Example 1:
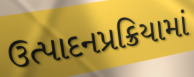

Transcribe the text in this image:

ઉત્પાદનપ્રક્રિયામાં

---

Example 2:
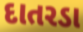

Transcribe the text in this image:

દાતરડા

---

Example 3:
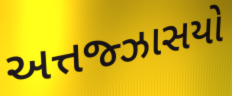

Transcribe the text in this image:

અત્તજ્ઝાસયો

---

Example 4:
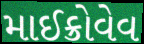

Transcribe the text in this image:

માઈક્રોવેવ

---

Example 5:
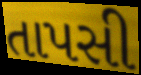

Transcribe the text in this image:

તાપસી